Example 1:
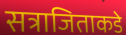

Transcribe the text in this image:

सत्राजिताकडे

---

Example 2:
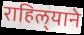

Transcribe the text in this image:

राहिल्याने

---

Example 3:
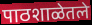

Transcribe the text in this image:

पाठशाळेतले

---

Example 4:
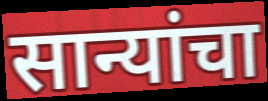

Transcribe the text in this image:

सान्यांचा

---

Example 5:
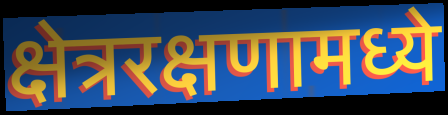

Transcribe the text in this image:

क्षेत्ररक्षणामध्ये